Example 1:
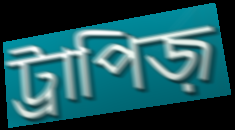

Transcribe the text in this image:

ট্রাপিজ়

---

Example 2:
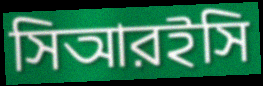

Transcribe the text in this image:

সিআরইসি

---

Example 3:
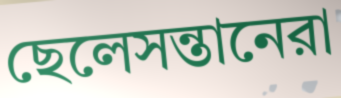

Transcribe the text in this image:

ছেলেসন্তানেরা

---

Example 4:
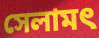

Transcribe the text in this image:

সেলামৎ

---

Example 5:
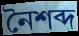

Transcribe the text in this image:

নৈশব্দ